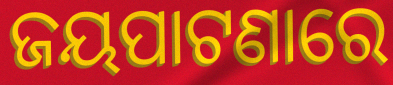
ଜୟପାଟଣାରେ